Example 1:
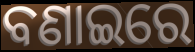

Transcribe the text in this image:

ବଣାଇରେ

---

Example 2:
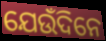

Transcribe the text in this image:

ଯେଉଁଦିନେ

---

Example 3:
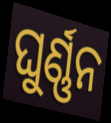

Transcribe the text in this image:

ଘୁର୍ଣ୍ଣନ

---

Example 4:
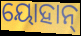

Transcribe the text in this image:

ୟୋହାନ୍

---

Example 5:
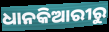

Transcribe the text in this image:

ଧାନକିଆରୀରୁ